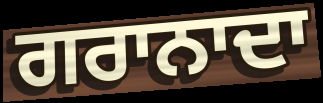
ਗਰਾਨਾਦਾ